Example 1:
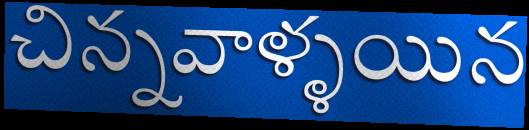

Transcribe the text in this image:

చిన్నవాళ్ళయిన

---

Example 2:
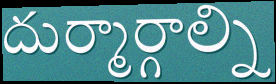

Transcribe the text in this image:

దుర్మార్గాల్ని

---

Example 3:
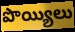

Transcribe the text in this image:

పొయ్యిలు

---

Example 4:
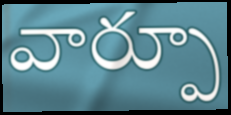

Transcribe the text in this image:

వార్పూ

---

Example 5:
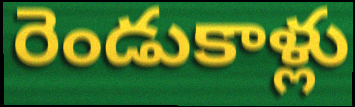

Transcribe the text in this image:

రెండుకాళ్లు